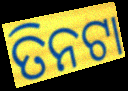
ତିନଟା